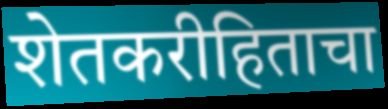
शेतकरीहिताचा